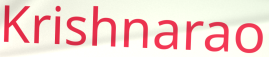
Krishnarao